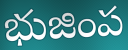
భుజింప